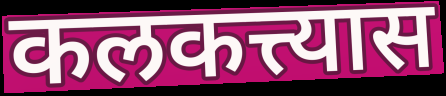
कलकत्त्यास